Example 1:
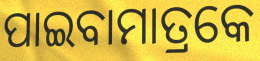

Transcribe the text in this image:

ପାଇବାମାତ୍ରକେ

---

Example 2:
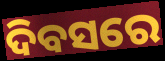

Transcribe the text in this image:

ଦିବସରେ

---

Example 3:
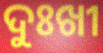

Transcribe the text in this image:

ଦୁଃଖୀ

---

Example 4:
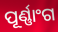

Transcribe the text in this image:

ପୂର୍ଣ୍ଣାଂଗ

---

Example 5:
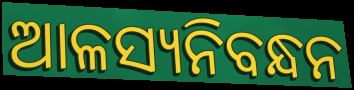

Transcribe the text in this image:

ଆଳସ୍ୟନିବନ୍ଧନ